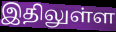
இதிலுள்ள